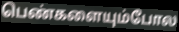
பெண்களையும்போல